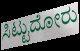
ಸಿಟ್ಟುದೋರು